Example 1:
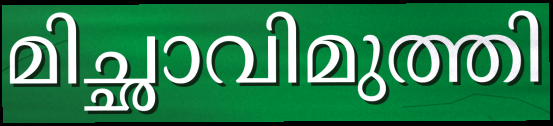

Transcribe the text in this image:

മിച്ഛാവിമുത്തി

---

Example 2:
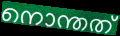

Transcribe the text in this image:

നൊന്തത്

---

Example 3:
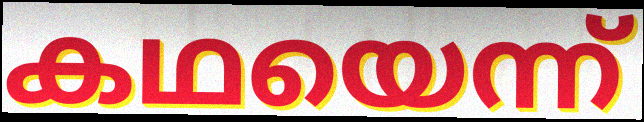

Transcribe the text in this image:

കഥയെന്ന്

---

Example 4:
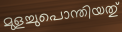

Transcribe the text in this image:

മുളച്ചുപൊന്തിയതു്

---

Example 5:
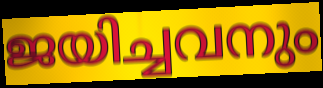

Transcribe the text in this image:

ജയിച്ചവനും